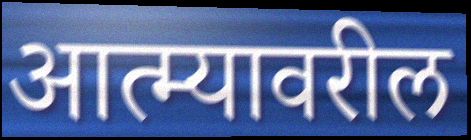
आत्म्यावरील